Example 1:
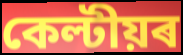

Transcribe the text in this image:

কেল্টীয়ৰ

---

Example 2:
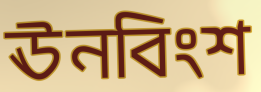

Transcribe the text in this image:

ঊনবিংশ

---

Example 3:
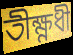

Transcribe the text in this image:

তীক্ষ্ণধী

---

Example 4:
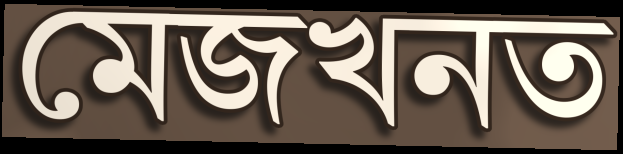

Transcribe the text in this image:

মেজখনত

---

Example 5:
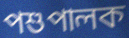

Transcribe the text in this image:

পশুপালক